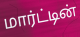
மார்ட்டின்